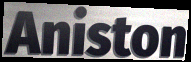
Aniston